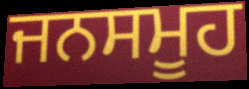
ਜਨਸਮੂਹ